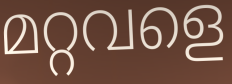
മറ്റവളെ